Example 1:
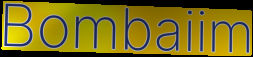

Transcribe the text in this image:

Bombaiim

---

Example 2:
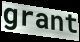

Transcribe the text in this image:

grant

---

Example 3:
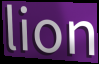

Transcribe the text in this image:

lion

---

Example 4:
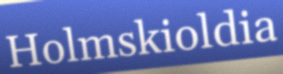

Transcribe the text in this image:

Holmskioldia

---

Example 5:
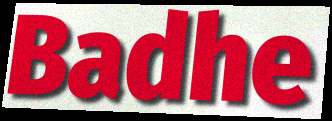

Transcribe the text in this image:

Badhe